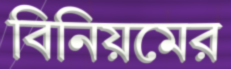
বিনিয়মের